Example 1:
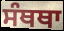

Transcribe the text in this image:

ਸੰਥਥਾ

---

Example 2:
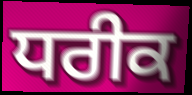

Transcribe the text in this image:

ਧਰੀਕ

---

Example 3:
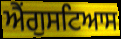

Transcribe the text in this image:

ਐਂਗੁਸਟਿਆਸ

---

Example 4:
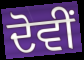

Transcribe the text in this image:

ਦੋਵੀਂ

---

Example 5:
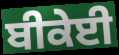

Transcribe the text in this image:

ਬੀਕੇਈ